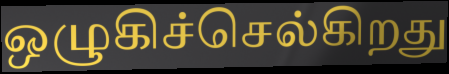
ஒழுகிச்செல்கிறது